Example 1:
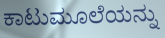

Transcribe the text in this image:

ಕಾಟುಮೂಲೆಯನ್ನು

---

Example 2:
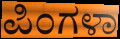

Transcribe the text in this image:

ಪಿಂಗಳಾ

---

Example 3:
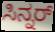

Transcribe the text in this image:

ಸಿನ್ನರ್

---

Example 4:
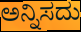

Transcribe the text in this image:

ಅನ್ನಿಸದು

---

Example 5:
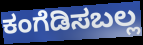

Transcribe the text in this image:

ಕಂಗೆಡಿಸಬಲ್ಲ